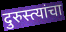
दुरुस्त्यांचा